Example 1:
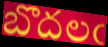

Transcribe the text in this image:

బొదలఁ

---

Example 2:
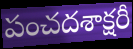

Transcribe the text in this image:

పంచదశాక్షరీ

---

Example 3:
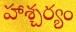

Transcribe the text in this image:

హాశ్చర్యం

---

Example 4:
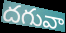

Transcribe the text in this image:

దగువా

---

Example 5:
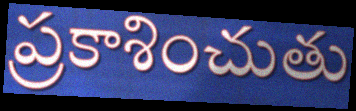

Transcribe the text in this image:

ప్రకాశించుతు